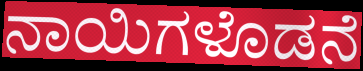
ನಾಯಿಗಳೊಡನೆ